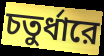
চতুর্ধারে